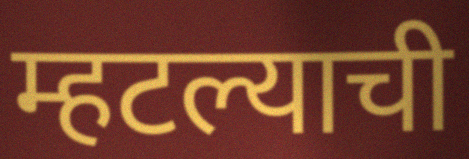
म्हटल्याची